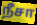
நீசா